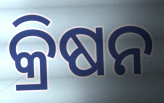
କ୍ରିଷନ